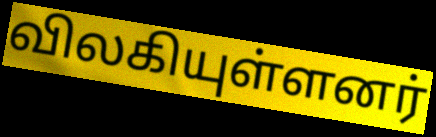
விலகியுள்ளனர்